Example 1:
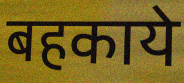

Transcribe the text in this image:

बहकाये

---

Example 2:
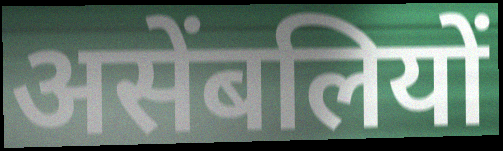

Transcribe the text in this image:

असेंबलियों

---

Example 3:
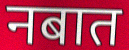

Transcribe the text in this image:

नबात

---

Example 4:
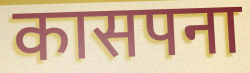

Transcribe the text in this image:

कासपना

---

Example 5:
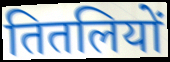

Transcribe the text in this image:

तितलियों